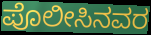
ಪೊಲೀಸಿನವರ